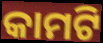
କାମଟି